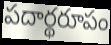
పదార్థరూపం